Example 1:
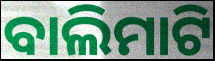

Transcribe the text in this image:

ବାଲିମାଟି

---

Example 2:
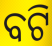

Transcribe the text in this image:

ବଟି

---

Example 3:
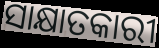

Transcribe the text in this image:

ସାକ୍ଷାତକାରୀ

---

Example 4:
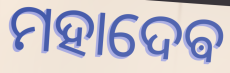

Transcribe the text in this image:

ମହାଦେଵ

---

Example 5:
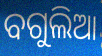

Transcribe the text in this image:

ବଗୁଲିଆ